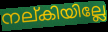
നല്കിയില്ലേ